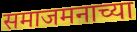
समाजमनाच्या